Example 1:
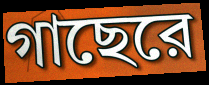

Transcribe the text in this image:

গাছেরে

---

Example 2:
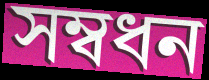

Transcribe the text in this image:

সম্বধন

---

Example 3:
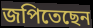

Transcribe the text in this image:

জপিতেছেন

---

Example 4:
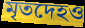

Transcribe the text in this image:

মৃতদেহও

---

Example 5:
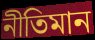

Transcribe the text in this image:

নীতিমান